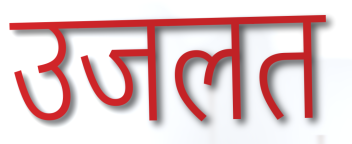
उजलत